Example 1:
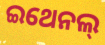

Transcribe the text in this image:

ଇଥେନଲ୍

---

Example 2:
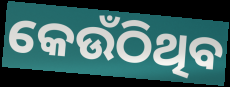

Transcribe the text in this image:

କେଉଁଠିଥିବ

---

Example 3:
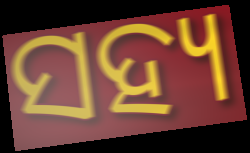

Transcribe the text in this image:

ସହ୍ୟ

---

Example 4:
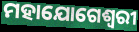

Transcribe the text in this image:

ମହାଯୋଗେଶ୍ୱରୀ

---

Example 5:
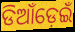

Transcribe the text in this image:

ଡିଆଁଡ଼େଇଁ